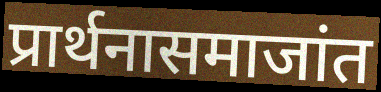
प्रार्थनासमाजांत